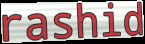
rashid